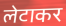
लेटाकर